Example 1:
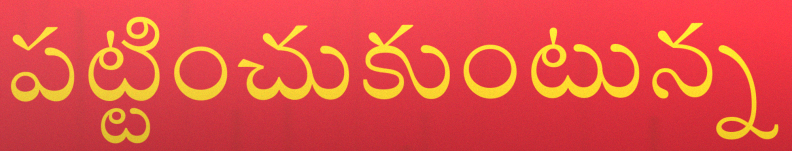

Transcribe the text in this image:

పట్టించుకుంటున్న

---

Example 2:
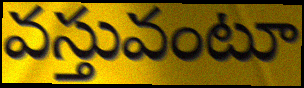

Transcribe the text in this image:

వస్తువంటూ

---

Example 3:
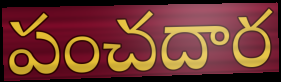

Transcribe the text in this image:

పంచదార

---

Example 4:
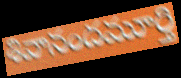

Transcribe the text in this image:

శివానందమూర్తి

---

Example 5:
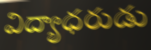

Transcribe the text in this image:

విద్యాధరుడు